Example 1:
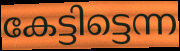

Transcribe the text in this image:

കേട്ടിട്ടെന്ന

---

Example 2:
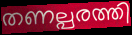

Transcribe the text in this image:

തണല്പരത്തി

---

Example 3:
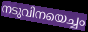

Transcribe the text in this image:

നടുവിനയെച്ചം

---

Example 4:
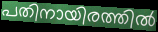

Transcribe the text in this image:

പതിനായിരത്തിൽ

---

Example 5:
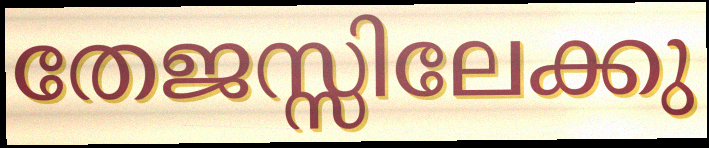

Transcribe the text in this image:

തേജസ്സിലേക്കു